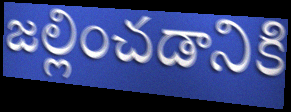
జల్లించడానికి